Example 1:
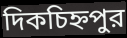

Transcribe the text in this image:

দিকচিহ্নপুর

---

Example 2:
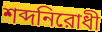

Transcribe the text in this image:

শব্দনিরোধী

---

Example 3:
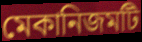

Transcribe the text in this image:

মেকানিজমটি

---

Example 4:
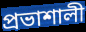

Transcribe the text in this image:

প্রভাশালী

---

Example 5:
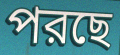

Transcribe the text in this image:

পরছে